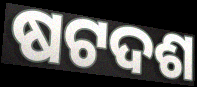
ଷଟଦଶ